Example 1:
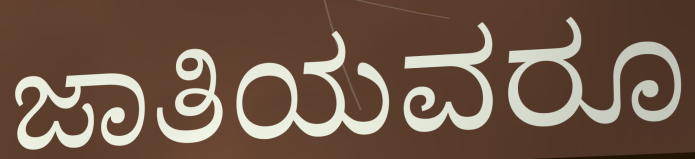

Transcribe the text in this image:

ಜಾತಿಯವರೂ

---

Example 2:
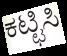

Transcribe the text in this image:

ಕಟ್ಟಿಸಿ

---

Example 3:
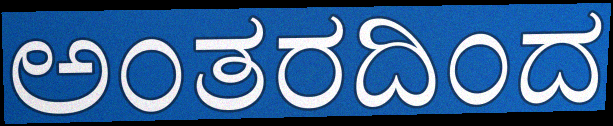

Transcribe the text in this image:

ಅಂತರದಿಂದ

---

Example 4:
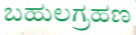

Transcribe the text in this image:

ಬಹುಲಗ್ರಹಣ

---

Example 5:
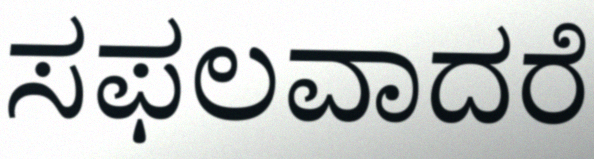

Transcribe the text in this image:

ಸಫಲವಾದರೆ